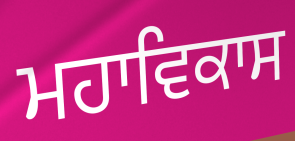
ਮਹਾਵਿਕਾਸ